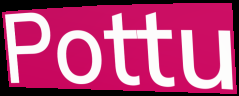
Pottu